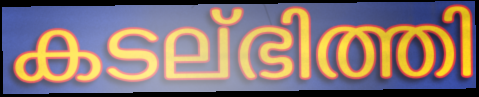
കടല്ഭിത്തി